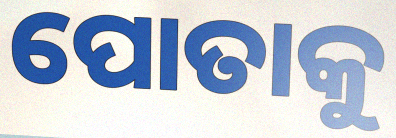
ପୋତାକୁ